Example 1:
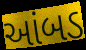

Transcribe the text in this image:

આંબડ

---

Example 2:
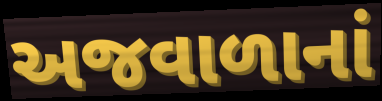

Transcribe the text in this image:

અજવાળાનાં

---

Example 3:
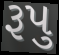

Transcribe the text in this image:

રૂપુ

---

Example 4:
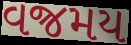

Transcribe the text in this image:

વજ્રમય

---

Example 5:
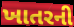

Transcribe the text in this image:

ખાતરની